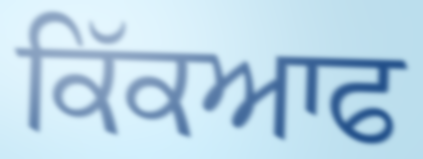
ਕਿੱਕਆਫ